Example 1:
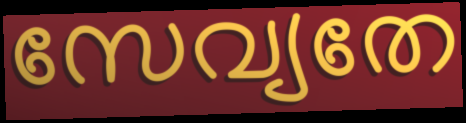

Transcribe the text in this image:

സേവ്യതേ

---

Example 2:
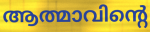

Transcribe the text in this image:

ആത്മാവിന്റെ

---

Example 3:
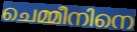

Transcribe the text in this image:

ചെമ്മീനിനെ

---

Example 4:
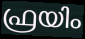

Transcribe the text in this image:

ഫ്രയിം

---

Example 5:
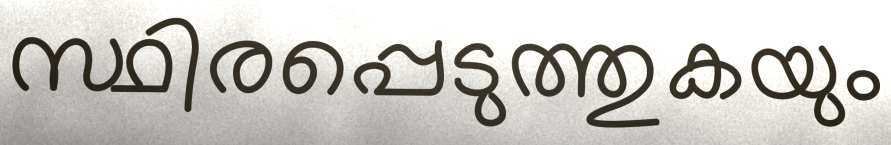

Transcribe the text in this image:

സ്ഥിരപ്പെടുത്തുകയും